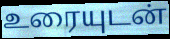
உரையுடன்